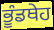
ਭੂੰਡਥੇਹ